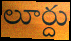
లూర్దు